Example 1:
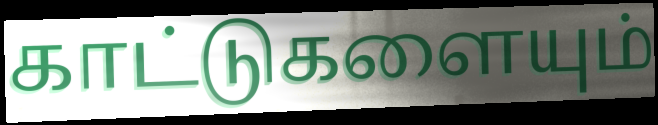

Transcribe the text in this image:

காட்டுகளையும்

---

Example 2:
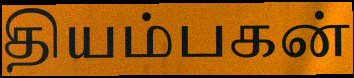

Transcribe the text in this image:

தியம்பகன்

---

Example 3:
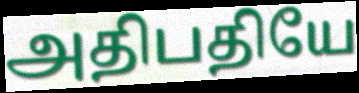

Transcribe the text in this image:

அதிபதியே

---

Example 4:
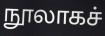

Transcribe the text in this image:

நூலாகச்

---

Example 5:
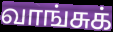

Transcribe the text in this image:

வாங்சுக்